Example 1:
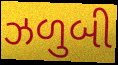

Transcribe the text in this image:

ઝળુબી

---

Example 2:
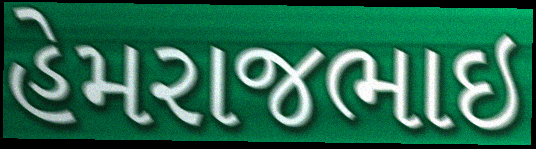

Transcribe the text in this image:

હેમરાજભાઇ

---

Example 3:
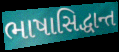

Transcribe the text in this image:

ભાષાસિદ્ધાન્ત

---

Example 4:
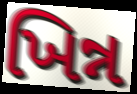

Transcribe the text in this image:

ખિન્ન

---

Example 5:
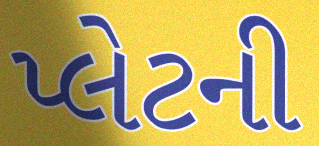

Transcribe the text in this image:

પ્લેટની